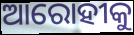
ଆରୋହୀକୁ